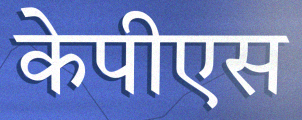
केपीएस